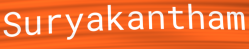
Suryakantham